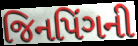
જિનપિંગની